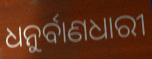
ଧନୁର୍ବାଣଧାରୀ